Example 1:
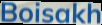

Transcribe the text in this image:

Boisakh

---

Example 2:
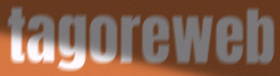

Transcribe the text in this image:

tagoreweb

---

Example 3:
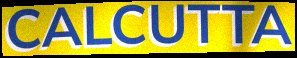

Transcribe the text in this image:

CALCUTTA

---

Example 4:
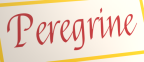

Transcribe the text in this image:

Peregrine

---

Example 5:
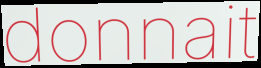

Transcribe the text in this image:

donnait